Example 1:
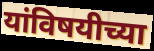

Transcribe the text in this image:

यांविषयीच्या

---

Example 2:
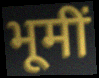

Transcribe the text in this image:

भूमीं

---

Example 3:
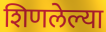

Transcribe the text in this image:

शिणलेल्या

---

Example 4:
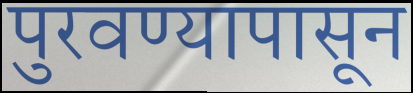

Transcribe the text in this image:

पुरवण्यापासून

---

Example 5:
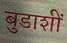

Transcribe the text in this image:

बुडाशीं